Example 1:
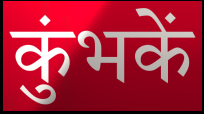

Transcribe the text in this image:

कुंभकें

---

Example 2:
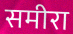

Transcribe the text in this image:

समीरा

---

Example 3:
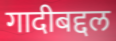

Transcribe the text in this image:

गादीबद्दल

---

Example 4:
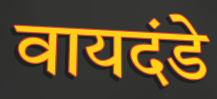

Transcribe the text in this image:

वायदंडे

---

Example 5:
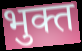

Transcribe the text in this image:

भुक्त